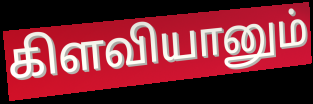
கிளவியானும்